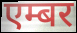
एम्बर